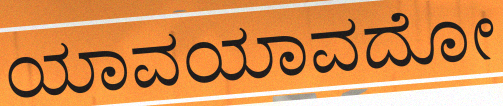
ಯಾವಯಾವದೋ